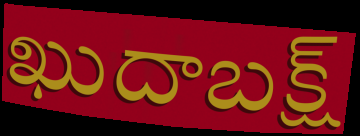
ఖుదాబక్ష్